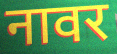
नावर